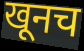
खूनच